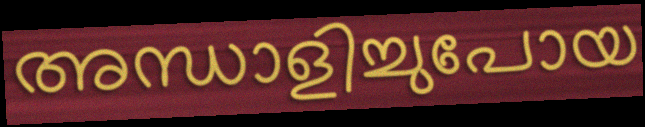
അന്ധാളിച്ചുപോയ